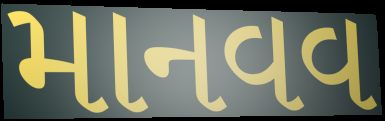
માનવવ